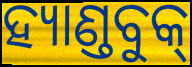
ହ୍ୟାଣ୍ଡବୁକ୍